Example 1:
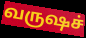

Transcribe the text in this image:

வருஷச்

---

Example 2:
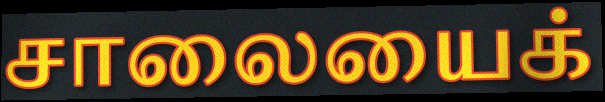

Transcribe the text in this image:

சாலையைக்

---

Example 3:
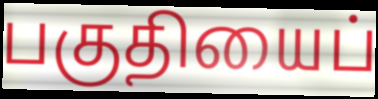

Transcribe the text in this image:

பகுதியைப்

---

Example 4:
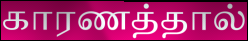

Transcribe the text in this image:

காரணத்தால்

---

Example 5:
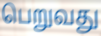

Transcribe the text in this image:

பெறுவது